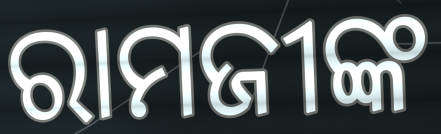
ରାମଜୀଙ୍କ